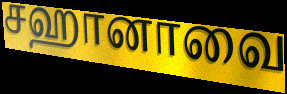
சஹானாவை